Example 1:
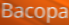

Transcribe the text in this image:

Bacopa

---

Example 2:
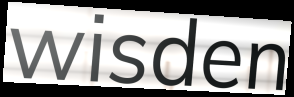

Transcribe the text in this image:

wisden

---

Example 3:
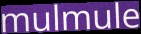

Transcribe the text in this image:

mulmule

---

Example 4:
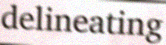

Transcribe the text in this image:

delineating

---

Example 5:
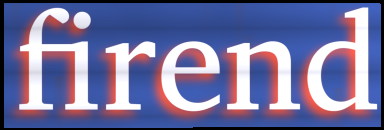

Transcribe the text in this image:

firend